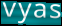
vyas